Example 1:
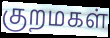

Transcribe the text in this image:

குறமகள்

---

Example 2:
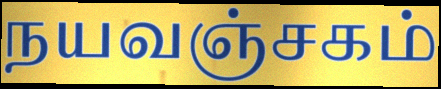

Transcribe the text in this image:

நயவஞ்சகம்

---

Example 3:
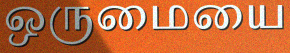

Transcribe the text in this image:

ஒருமையை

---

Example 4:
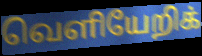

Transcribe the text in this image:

வெளியேறிக்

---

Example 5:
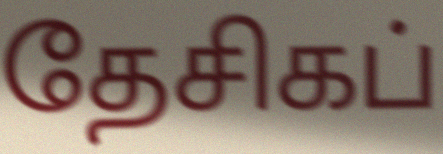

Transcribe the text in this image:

தேசிகப்